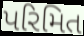
પરિમિત